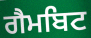
ਗੈਮਬਿਟ